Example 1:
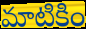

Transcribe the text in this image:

మాటికిం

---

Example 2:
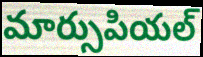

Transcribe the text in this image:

మార్సుపియల్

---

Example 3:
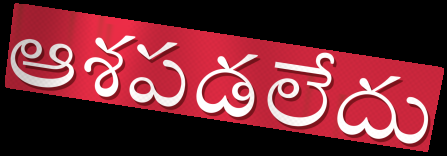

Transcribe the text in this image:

ఆశపడలేదు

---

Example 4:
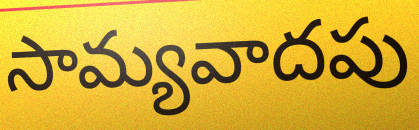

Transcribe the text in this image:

సామ్యవాదపు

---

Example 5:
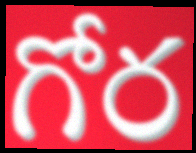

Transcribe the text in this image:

గోర